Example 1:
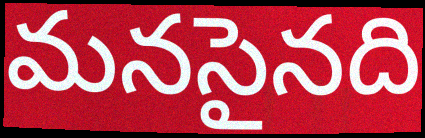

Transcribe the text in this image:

మనసైనది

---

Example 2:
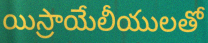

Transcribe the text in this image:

యిస్రాయేలీయులతో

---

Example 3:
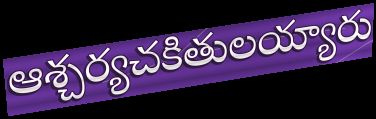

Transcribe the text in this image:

ఆశ్చర్యచకితులయ్యారు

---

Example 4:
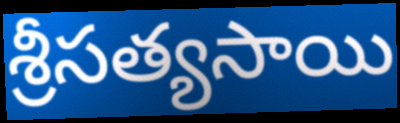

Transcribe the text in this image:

శ్రీసత్యసాయి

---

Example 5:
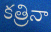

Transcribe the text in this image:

కత్రినా